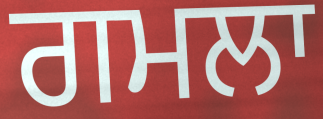
ਗਮਲਾ